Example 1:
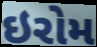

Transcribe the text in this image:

ઇરોમ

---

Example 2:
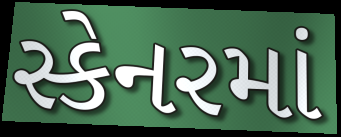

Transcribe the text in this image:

સ્કેનરમાં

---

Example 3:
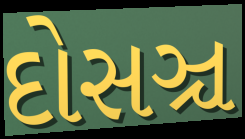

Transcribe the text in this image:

દોસઞ્ચ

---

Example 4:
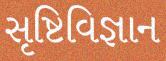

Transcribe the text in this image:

સૃષ્ટિવિજ્ઞાન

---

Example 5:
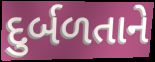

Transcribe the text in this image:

દુર્બળતાને